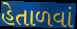
હેતાળવાં